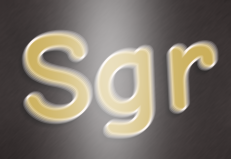
Sgr